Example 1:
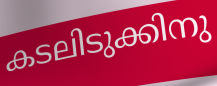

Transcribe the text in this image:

കടലിടുക്കിനു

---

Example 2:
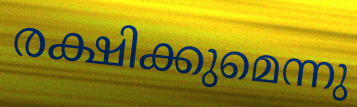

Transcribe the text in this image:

രക്ഷിക്കുമെന്നു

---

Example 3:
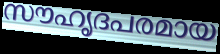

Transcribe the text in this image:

സൗഹൃദപരമായ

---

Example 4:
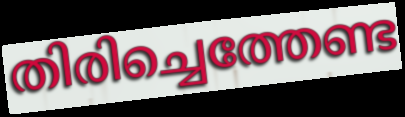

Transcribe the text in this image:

തിരിച്ചെത്തേണ്ട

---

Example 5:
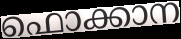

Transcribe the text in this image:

ഫൊക്കാന